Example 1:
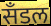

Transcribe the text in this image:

सँडल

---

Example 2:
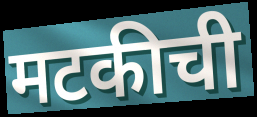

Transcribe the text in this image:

मटकीची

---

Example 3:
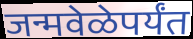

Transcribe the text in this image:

जन्मवेळेपर्यंत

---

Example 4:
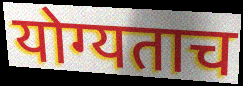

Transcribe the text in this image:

योग्यताच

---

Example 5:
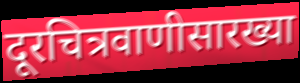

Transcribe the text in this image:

दूरचित्रवाणीसारख्या